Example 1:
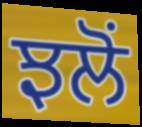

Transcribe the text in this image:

ਝਲੋਂ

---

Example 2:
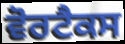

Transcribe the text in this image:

ਵੋਰਟੈਕਸ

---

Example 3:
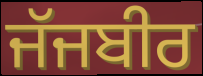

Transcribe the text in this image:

ਜੱਜਬੀਰ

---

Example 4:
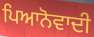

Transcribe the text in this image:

ਪਿਆਨੋਵਾਦੀ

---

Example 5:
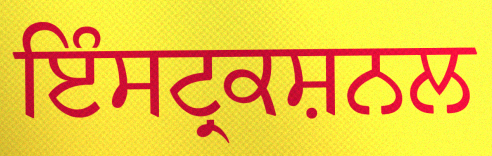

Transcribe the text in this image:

ਇੰਸਟ੍ਰਕਸ਼ਨਲ